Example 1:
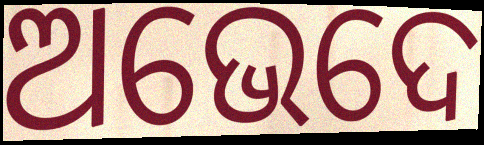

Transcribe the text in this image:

ଅଭେଦେ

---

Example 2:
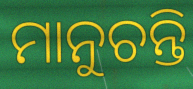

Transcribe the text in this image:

ମାନୁଚନ୍ତି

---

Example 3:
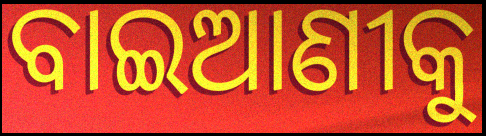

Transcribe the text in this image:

ବାଇଆଣୀକୁ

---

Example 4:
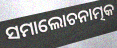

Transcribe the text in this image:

ସମାଲୋଚନାତ୍ମକ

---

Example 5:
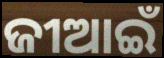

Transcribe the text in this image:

ଜୀଆଇଁ